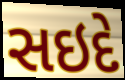
સઇદે